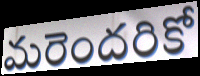
మరెందరికో